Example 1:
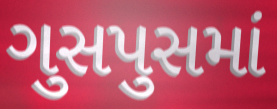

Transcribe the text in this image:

ગુસપુસમાં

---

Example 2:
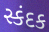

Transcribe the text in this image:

સ્કંદક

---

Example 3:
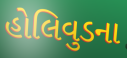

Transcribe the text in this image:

હોલિવુડના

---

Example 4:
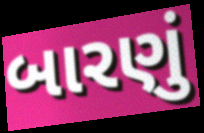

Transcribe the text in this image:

બારણું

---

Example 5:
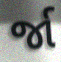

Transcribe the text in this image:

ર્જા